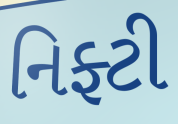
નિફ્ટી